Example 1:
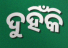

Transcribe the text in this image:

ଦୁହିଁକି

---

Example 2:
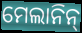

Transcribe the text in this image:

ମେଲାନିନ୍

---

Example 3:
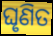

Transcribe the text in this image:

ଘୃଣିତ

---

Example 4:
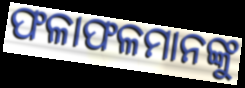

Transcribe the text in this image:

ଫଳାଫଳମାନଙ୍କୁ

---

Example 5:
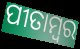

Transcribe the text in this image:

ପୀତାମ୍ୱର